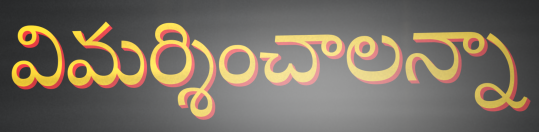
విమర్శించాలన్నా